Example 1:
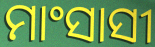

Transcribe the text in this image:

ମାଂସାସୀ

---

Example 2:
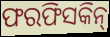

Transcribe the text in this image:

ଫରଫିସକିନ୍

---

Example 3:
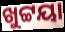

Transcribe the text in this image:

ଖୁଟ୍ଟୟା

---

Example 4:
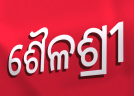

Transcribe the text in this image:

ଶୈଳଶ୍ରୀ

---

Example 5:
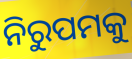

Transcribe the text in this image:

ନିରୁପମକୁ